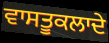
ਵਾਸਤੂਕਲਾਦੇ